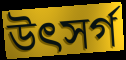
উৎসর্গ